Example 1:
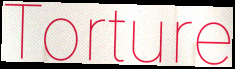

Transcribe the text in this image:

Torture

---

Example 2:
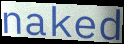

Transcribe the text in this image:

naked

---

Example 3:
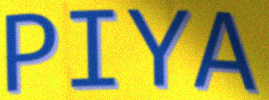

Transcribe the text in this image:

PIYA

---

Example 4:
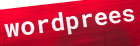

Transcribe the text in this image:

wordprees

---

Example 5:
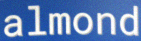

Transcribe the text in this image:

almond